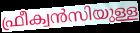
ഫ്രീക്വൻസിയുള്ള